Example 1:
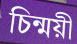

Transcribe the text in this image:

চিন্ময়ী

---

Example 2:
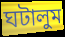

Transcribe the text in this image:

ঘটালুম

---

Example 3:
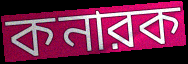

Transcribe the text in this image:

কনারক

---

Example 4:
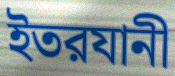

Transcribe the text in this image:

ইতরযানী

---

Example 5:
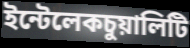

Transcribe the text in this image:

ইন্টেলেকচুয়ালিটি